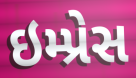
ઇમ્પ્રેસ